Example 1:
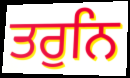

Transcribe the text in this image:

ਤਰੁਨਿ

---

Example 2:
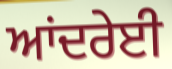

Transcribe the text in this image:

ਆਂਦਰੇਈ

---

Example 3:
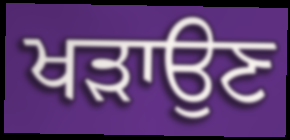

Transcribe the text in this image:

ਖੜਾਉਣ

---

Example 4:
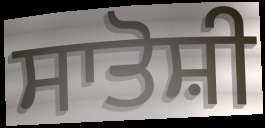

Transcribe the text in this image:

ਸਾਤੋਸ਼ੀ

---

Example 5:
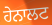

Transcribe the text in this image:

ਹੇਨਾਲਟ